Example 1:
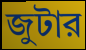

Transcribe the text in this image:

জুটার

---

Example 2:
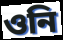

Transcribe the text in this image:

ওনি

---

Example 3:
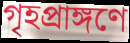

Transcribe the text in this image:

গৃহপ্রাঙ্গণে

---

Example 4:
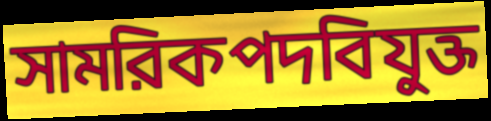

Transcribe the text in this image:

সামরিকপদবিযুক্ত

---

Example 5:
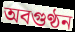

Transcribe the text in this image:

অবগুণ্ঠন